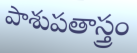
పాశుపతాస్త్రం